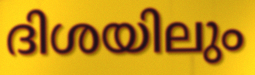
ദിശയിലും